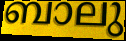
ബാലു